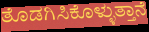
ತೊಡಗಿಸಿಕೊಳ್ಳುತ್ತಾನೆ